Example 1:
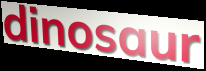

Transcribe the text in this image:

dinosaur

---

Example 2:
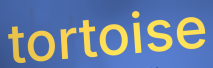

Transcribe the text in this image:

tortoise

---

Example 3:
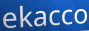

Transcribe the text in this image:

ekacco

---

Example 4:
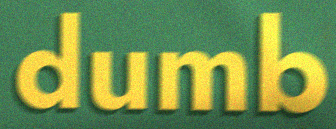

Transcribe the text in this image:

dumb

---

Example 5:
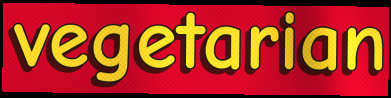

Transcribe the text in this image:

vegetarian